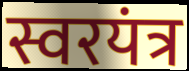
स्वरयंत्र